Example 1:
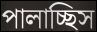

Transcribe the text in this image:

পালাচ্ছিস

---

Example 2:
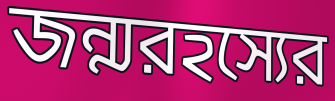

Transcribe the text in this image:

জন্মরহস্যের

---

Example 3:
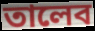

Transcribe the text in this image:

তালেব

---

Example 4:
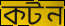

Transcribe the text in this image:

কটন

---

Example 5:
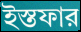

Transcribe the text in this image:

ইস্তফার